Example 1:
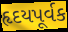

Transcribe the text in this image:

હૃદયપૂર્વક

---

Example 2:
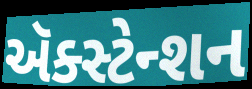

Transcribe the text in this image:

ઍક્સ્ટેન્શન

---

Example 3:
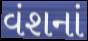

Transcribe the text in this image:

વંશનાં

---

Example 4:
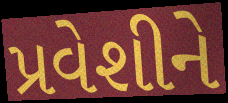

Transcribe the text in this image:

પ્રવેશીને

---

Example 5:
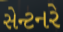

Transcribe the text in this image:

સેન્ટનરે